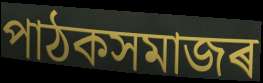
পাঠকসমাজৰ